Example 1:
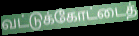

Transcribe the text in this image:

வட்டுக்கோட்டைத்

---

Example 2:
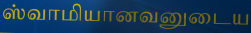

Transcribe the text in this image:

ஸ்வாமியானவனுடைய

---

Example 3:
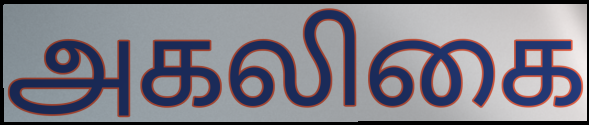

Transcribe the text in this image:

அகலிகை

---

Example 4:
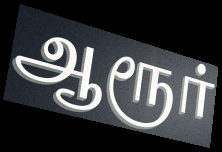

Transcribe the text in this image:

ஆரூர்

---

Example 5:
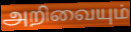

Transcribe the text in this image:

அறிவையும்